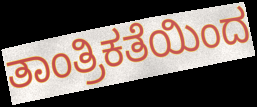
ತಾಂತ್ರಿಕತೆಯಿಂದ